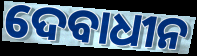
ଦେବାଧୀନ